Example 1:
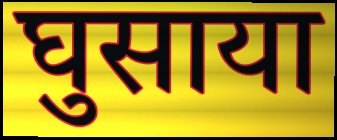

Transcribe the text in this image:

घुसाया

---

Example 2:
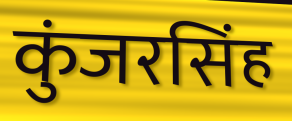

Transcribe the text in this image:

कुंजरसिंह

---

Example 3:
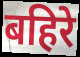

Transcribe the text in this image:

बहिरे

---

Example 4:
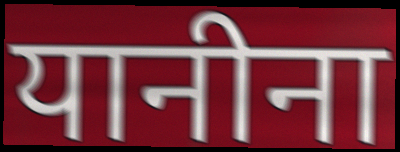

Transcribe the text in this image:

यानीना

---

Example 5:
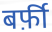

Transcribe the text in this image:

बर्फ़ी